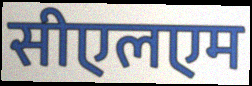
सीएलएम